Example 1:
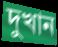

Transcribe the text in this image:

দুখান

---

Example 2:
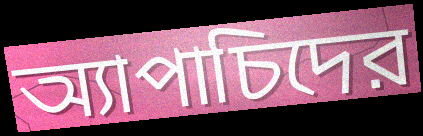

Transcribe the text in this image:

অ্যাপাচিদের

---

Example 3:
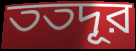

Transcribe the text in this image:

ততদূর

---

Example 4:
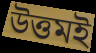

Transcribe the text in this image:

উত্তমই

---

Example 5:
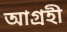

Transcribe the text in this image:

আগ্রহী